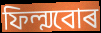
ফিল্মবোৰ